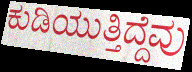
ಕುಡಿಯುತ್ತಿದ್ದೆವು